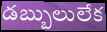
డబ్బులులేక